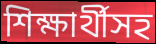
শিক্ষার্থীসহ